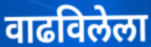
वाढविलेला